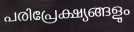
പരിപ്രേക്ഷ്യങ്ങളും